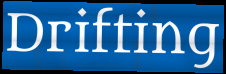
Drifting